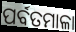
ପର୍ବତମାଳା